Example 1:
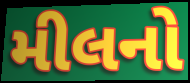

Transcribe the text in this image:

મીલનો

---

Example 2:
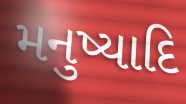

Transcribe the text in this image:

મનુષ્યાદિ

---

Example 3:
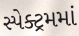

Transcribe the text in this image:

સ્પેક્ટ્રમમાં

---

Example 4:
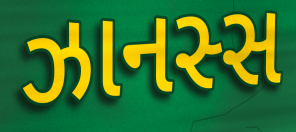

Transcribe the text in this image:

ઝાનસ્સ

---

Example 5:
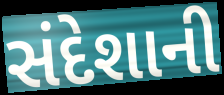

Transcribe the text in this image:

સંદેશાની